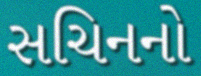
સચિનનો